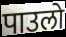
पाउलो